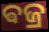
ଵଜ୍ର